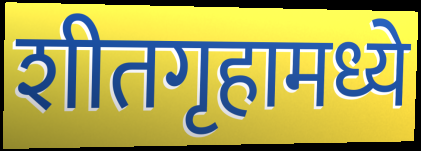
शीतगृहामध्ये